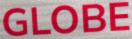
GLOBE